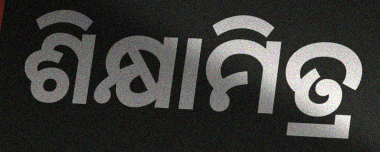
ଶିକ୍ଷାମିତ୍ର